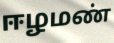
ஈழமண்